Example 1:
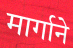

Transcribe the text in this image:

मार्गाने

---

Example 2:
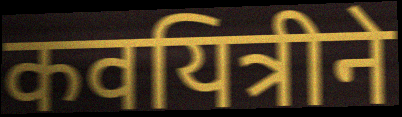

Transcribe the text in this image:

कवयित्रीने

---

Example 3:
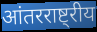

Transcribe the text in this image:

आंतरराष्ट्रीय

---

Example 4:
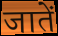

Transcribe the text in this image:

जातें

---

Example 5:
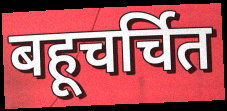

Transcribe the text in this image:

बहूचर्चित